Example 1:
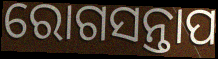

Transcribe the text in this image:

ରୋଗସନ୍ତାପ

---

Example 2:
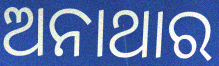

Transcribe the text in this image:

ଅନାଥାର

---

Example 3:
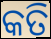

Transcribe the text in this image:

କତି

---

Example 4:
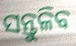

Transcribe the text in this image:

ସନ୍ତୁଳିବ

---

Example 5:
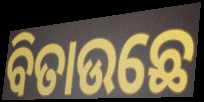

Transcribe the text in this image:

ବିତାଉଛେ